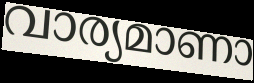
വാര്യമാണാ